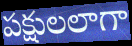
పక్షులలాగా